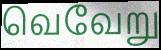
வெவேறு